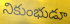
నికుంభుడూ